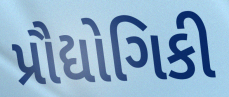
પ્રૌદ્યોગિકી